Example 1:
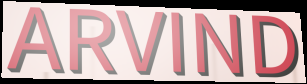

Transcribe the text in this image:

ARVIND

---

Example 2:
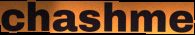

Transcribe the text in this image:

chashme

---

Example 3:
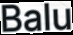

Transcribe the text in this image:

Balu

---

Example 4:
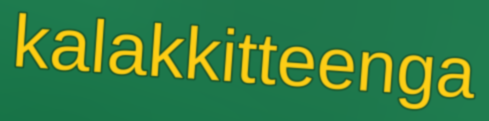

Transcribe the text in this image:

kalakkitteenga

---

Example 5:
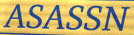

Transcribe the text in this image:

ASASSN